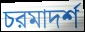
চরমাদর্শ